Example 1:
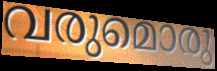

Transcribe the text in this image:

വരുമൊരു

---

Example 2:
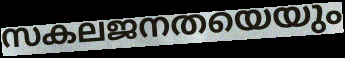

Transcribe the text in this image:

സകലജനതയെയും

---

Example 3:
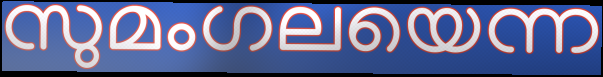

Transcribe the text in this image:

സുമംഗലയെന്ന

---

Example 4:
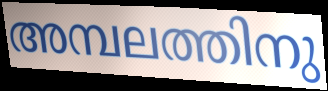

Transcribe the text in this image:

അമ്പലത്തിനു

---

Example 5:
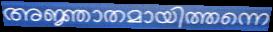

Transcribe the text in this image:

അജ്ഞാതമായിത്തന്നെ